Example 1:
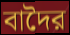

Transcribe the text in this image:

বাদৈর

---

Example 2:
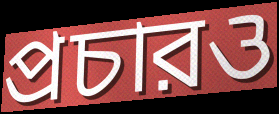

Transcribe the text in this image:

প্রচারও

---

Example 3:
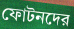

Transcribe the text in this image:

ফোটনদের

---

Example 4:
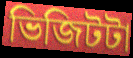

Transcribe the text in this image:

ভিজিটটা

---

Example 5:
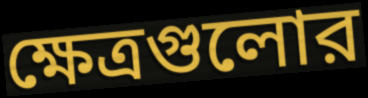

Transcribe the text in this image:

ক্ষেত্রগুলোর